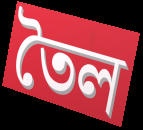
তৈল